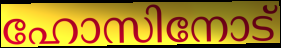
ഹോസിനോട്